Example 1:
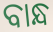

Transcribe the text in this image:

ବାନ୍ଧ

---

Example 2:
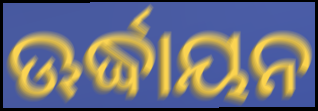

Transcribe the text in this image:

ଊର୍ଦ୍ଧାୟନ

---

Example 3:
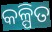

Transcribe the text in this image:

କଳ୍ପିତ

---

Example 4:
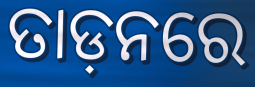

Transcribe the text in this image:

ତାଡ଼ନରେ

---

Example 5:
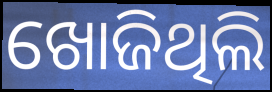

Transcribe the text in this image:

ଖୋଜିଥିଲି